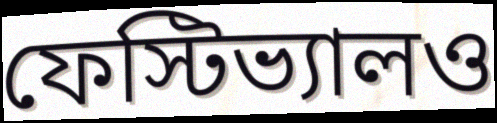
ফেস্টিভ্যালও